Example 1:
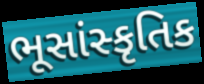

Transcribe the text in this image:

ભૂસાંસ્કૃતિક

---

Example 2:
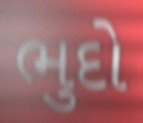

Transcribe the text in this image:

ભુદો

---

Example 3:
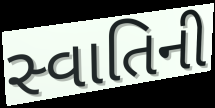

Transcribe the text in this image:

સ્વાતિની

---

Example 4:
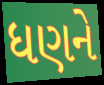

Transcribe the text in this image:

ધણને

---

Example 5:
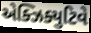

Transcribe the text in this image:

એક્ઝિક્યુટિવે